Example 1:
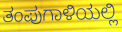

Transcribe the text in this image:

ತಂಪುಗಾಳಿಯಲ್ಲಿ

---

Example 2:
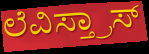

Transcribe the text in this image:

ಲೆವಿಸ್ತ್ರಾಸ್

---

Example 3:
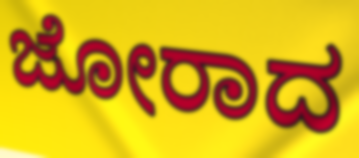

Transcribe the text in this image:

ಜೋರಾದ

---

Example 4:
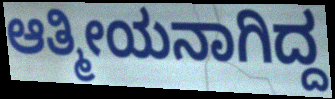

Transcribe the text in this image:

ಆತ್ಮೀಯನಾಗಿದ್ದ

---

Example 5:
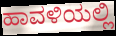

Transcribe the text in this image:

ಹಾವಳಿಯಲ್ಲಿ